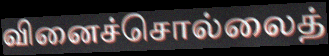
வினைச்சொல்லைத்